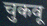
चुकवू